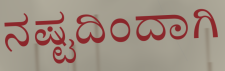
ನಷ್ಟದಿಂದಾಗಿ